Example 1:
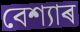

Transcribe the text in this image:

বেশ্যাৰ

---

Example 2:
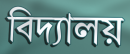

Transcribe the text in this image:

বিদ্যালয়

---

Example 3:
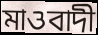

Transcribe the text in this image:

মাওবাদী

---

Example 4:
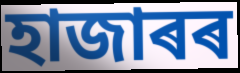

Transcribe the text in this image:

হাজাৰৰ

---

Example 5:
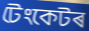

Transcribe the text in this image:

টেংকেটৰ